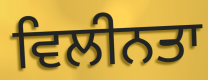
ਵਿਲੀਨਤਾ